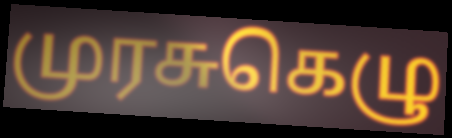
முரசுகெழு